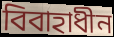
বিবাহাধীন